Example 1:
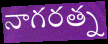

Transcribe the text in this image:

నాగరత్న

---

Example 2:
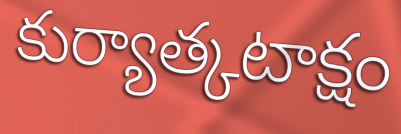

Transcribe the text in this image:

కుర్యాత్కటాక్షం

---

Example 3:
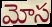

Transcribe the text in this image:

మోస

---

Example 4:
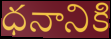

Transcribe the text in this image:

ధనానికి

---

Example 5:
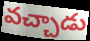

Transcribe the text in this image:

వచ్చాడు